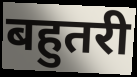
बहुतरी